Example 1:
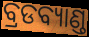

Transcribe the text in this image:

ବ୍ରଡବ୍ୟାଣ୍ଡ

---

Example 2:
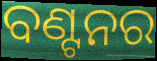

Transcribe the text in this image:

ବଣ୍ଟନର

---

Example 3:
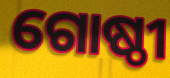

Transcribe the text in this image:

ଗୋଷ୍ଠୀ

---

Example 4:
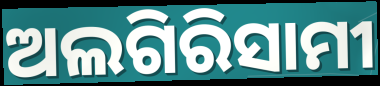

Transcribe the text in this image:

ଅଲଗିରିସାମୀ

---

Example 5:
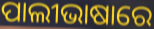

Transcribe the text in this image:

ପାଲୀଭାଷାରେ